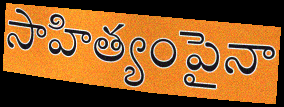
సాహిత్యంపైనా